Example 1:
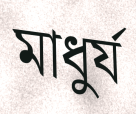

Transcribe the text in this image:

মাধুর্য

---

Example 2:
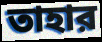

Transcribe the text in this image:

তাহার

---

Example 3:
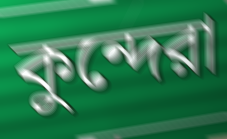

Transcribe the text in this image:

কুন্দেরা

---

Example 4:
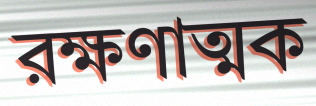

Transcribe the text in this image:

রক্ষণাত্মক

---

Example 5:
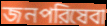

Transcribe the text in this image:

জনপরিষেবা